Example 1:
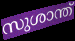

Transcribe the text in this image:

സുശാന്ത്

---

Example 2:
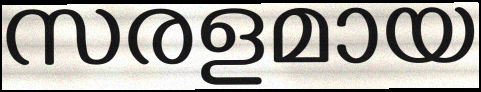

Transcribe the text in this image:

സരളമായ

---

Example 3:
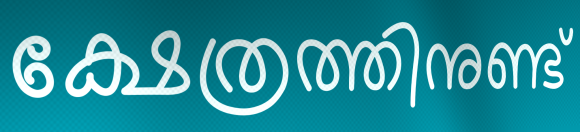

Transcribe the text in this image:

ക്ഷേത്രത്തിനുണ്ട്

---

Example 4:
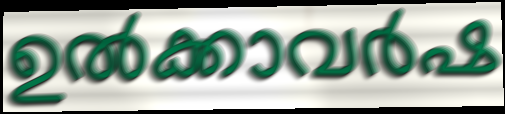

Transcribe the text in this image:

ഉൽക്കാവർഷ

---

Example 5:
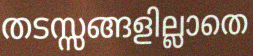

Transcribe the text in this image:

തടസ്സങ്ങളില്ലാതെ